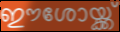
ഈശോയ്ക്ക്